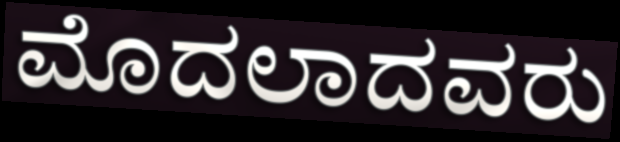
ಮೊದಲಾದವರು